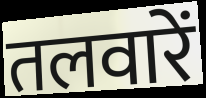
तलवारें